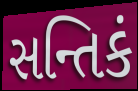
સન્તિકં